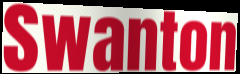
Swanton